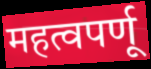
महत्‍वपर्णू